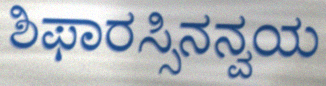
ಶಿಫಾರಸ್ಸಿನನ್ವಯ